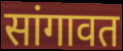
सांगावत